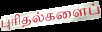
புரிதல்களைப்